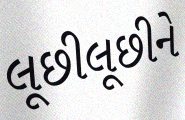
લૂછીલૂછીને